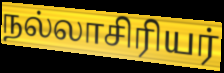
நல்லாசிரியர்